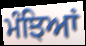
ਮੰਝਿਆਂ